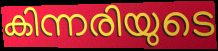
കിന്നരിയുടെ